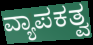
ವ್ಯಾಪಕತ್ವ